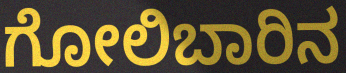
ಗೋಲಿಬಾರಿನ